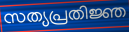
സത്യപ്രതിജ്ഞ